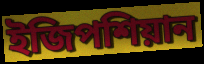
ইজিপশিয়ান